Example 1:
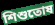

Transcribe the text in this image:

শিশুতোষ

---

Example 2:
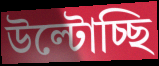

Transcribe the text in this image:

উল্টোচ্ছি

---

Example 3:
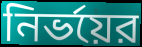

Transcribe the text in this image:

নির্ভয়ের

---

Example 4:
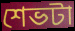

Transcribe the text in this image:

শেভটা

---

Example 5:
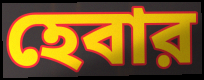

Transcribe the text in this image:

হেবার